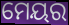
ମେୟର